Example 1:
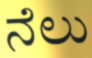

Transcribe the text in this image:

ನೆಲು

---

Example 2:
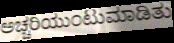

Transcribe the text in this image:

ಅಚ್ಚರಿಯುಂಟುಮಾಡಿತು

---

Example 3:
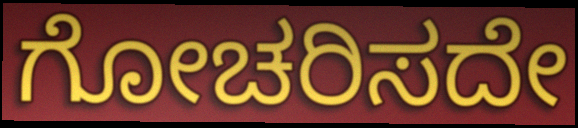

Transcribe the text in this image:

ಗೋಚರಿಸದೇ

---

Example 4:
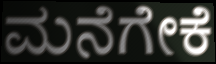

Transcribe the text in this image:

ಮನೆಗೇಕೆ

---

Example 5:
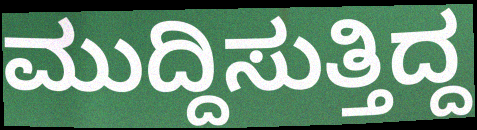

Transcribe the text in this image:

ಮುದ್ದಿಸುತ್ತಿದ್ದ